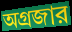
অগ্রজার